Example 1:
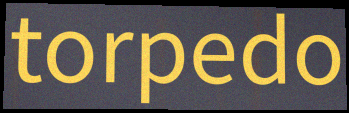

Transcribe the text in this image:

torpedo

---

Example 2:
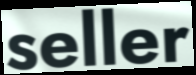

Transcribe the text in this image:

seller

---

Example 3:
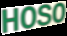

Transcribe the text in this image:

HOSO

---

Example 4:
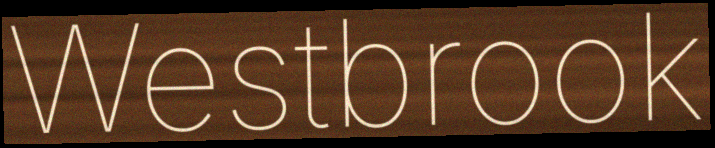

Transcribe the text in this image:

Westbrook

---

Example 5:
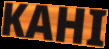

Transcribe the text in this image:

KAHI